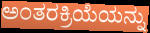
ಅಂತರಕ್ರಿಯೆಯನ್ನು